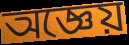
অজ্ঞেয়